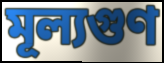
মূল্যগুণ